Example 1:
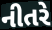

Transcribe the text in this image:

નીતરે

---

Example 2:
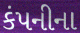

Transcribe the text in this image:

કંપનીના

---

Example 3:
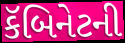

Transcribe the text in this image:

કૅબિનેટની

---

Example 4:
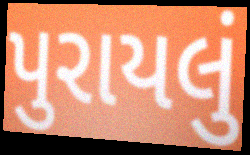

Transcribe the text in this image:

પુરાયલું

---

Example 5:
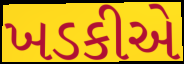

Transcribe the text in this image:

ખડકીએ